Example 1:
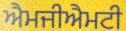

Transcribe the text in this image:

ਐਮਜੀਐਮਟੀ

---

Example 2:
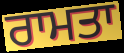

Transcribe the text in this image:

ਰਾਮਤਾ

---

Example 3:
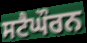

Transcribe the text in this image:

ਸਟੈਘੌਰਨ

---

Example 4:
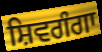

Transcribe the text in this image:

ਸ਼ਿਵਗੰਗਾ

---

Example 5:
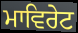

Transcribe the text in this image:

ਮਾਵਿਰੇਟ